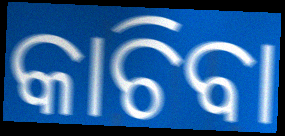
କାଚିବା